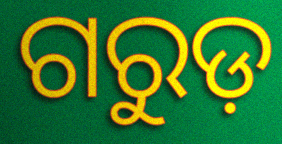
ଗରୁଡ଼